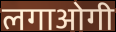
लगाओगी